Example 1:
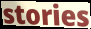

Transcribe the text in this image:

stories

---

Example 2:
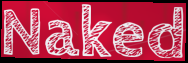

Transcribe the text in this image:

Naked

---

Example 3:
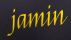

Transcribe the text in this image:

jamin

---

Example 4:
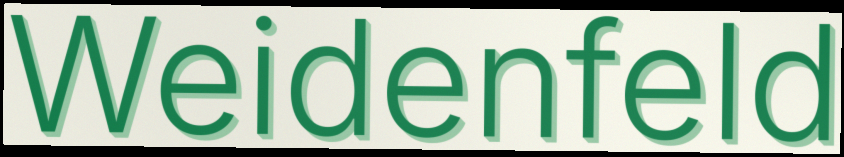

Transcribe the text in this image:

Weidenfeld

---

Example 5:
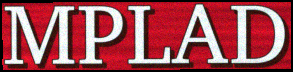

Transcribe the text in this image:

MPLAD